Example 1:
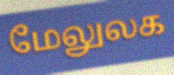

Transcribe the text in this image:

மேலுலக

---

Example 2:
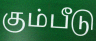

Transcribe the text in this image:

கும்பீடு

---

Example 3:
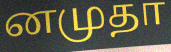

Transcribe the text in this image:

னமுதா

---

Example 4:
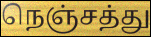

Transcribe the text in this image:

நெஞ்சத்து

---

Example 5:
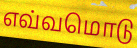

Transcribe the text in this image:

எவ்வமொடு